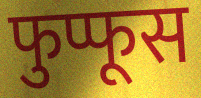
फुप्फूस